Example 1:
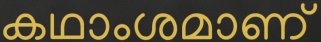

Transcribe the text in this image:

കഥാംശമാണ്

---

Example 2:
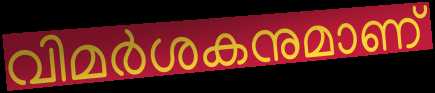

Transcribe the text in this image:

വിമർശകനുമാണ്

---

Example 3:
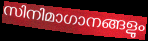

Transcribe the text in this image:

സിനിമാഗാനങ്ങളും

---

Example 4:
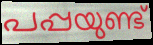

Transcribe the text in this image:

പപ്പയുണ്ട്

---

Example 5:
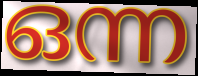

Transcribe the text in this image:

ഒന്ന